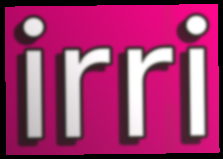
irri